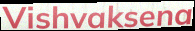
Vishvaksena